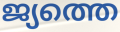
ജ്യത്തെ